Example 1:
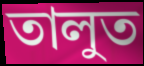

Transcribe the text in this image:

তালুত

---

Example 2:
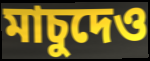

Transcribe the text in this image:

মাচুদেও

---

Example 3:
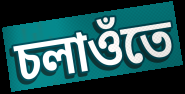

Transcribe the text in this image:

চলাওঁতে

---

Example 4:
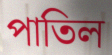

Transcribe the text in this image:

পাতিল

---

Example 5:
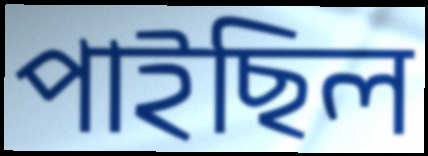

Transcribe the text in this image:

পাইছিল